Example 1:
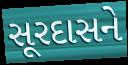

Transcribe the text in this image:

સૂરદાસને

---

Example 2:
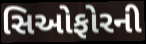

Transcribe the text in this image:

સિઓફોરની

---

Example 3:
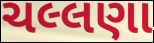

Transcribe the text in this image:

ચલ્લણા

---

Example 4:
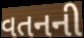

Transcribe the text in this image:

વતનની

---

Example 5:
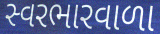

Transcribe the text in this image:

સ્વરભારવાળા